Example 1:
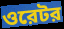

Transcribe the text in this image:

ওরেটর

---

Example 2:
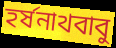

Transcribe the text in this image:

হর্ষনাথবাবু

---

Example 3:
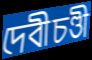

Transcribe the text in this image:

দেবীচণ্ডী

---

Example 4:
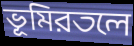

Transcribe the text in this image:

ভূমিরতলে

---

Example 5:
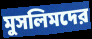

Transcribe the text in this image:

মুসলিমদের